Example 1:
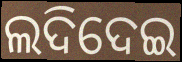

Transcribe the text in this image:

ଲଦିଦେଇ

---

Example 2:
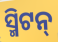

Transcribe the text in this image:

ସ୍ମିଟନ୍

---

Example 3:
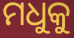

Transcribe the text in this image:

ମଧୁକୁ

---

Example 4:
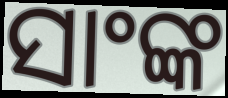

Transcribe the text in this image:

ସାଂଙ୍କ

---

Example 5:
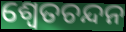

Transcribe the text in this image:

ଶ୍ୱେତଚନ୍ଦନ